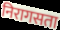
निरागसता